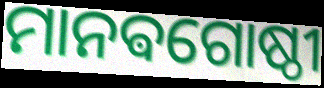
ମାନଵଗୋଷ୍ଠୀ